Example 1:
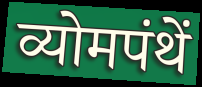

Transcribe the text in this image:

व्योमपंथें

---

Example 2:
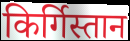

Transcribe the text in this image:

किर्गिस्तान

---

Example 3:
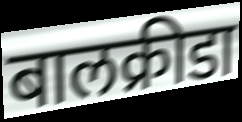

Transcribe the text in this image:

बालक्रीडा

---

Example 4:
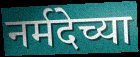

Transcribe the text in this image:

नर्मदेच्या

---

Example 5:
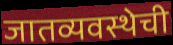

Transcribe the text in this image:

जातव्यवस्थेची